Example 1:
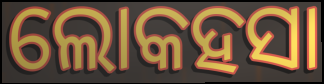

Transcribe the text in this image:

ଲୋକହସା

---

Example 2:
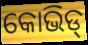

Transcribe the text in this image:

କୋଭିଡ୍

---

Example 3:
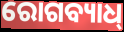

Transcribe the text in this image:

ରୋଗବ୍ୟାଧ୍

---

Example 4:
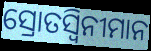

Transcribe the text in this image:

ସ୍ରୋତସ୍ୱିନୀମାନ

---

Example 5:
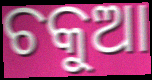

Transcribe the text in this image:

ଚକୁଆ